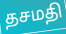
தசமதி